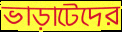
ভাড়াটেদের